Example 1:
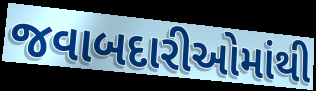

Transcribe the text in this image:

જવાબદારીઓમાંથી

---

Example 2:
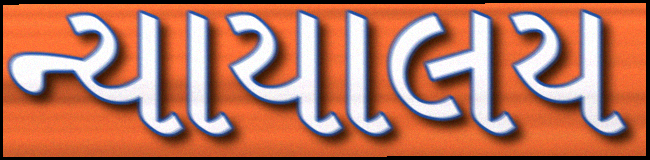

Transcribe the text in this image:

ન્યાયાલય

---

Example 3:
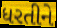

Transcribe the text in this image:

ધરતીને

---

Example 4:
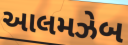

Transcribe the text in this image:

આલમઝેબ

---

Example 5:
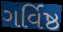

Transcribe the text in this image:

ગર્વિષ્ઠ